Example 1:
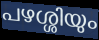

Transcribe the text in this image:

പഴശ്ശിയും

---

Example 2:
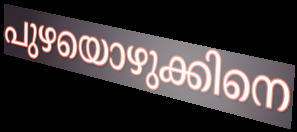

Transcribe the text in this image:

പുഴയൊഴുക്കിനെ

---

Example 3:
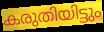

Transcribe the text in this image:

കരുതിയിട്ടും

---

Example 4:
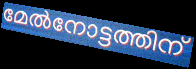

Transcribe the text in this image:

മേൽനോട്ടത്തിന്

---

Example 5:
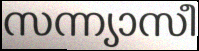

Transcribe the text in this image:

സന്ന്യാസീ